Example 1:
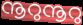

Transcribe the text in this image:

നൂറുനൂറു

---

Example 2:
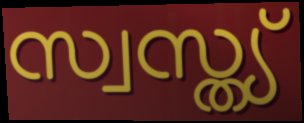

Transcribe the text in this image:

സ്വസ്ത്യ്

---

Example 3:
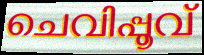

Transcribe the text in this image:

ചെവിപ്പൂവ്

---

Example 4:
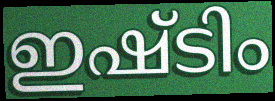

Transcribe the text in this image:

ഇഷ്ടിം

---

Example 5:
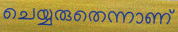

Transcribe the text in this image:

ചെയ്യരുതെന്നാണ്